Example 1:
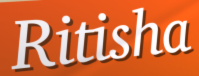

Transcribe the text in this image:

Ritisha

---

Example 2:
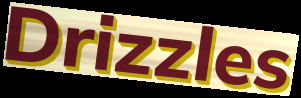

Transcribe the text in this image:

Drizzles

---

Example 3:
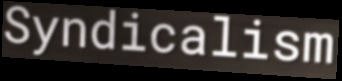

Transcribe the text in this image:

Syndicalism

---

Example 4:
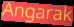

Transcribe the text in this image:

Angarak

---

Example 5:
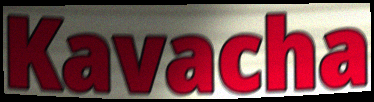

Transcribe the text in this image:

Kavacha